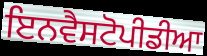
ਇਨਵੈਸਟੋਪੀਡੀਆ